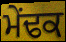
ਮੇਂਢਕ